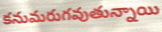
కనుమరుగవుతున్నాయి